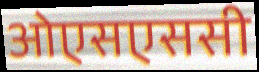
ओएसएससी